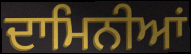
ਦਾਮਿਨੀਆਂ